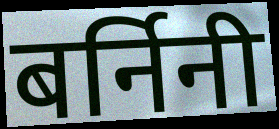
बर्निनी